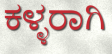
ಕಳ್ಳರಾಗಿ